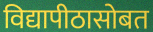
विद्यापीठासोबत